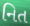
નિત